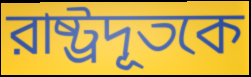
রাষ্ট্রদূতকে